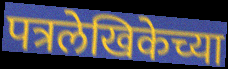
पत्रलेखिकेच्या